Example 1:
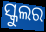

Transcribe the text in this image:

ସ୍କୁଲର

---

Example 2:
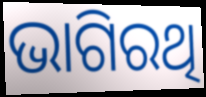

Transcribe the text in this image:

ଭାଗିରଥି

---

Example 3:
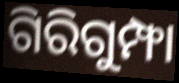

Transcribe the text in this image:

ଗିରିଗୁମ୍ଫା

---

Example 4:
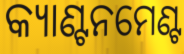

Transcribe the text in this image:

କ୍ୟାଣ୍ଟନମେଣ୍ଟ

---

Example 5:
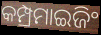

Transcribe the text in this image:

କମ୍ପ୍ରମାଇଜିଂ